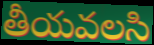
తీయవలసి